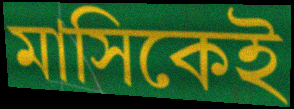
মাসিকেই